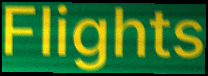
Flights